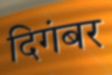
दिगंबर